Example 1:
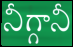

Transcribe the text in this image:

నీగ్గానీ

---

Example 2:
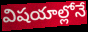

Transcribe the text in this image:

విషయాల్లోనే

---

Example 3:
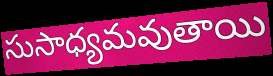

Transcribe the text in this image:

సుసాధ్యమవుతాయి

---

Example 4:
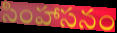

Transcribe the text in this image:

సింహాసనం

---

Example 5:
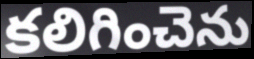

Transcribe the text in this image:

కలిగించెను